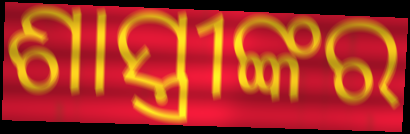
ଶାସ୍ତ୍ରୀଙ୍କର